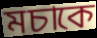
মচাকে